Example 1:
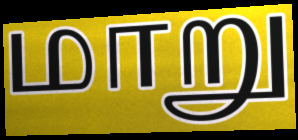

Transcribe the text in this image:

மாறு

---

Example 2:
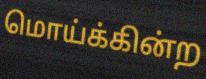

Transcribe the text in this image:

மொய்க்கின்ற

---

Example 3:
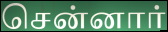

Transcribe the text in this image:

சென்னார்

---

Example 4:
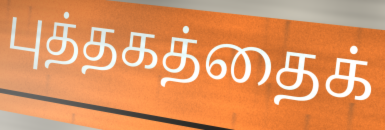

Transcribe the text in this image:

புத்தகத்தைக்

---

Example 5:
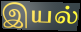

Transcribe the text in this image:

இயல்